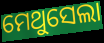
ମେଥୁସେଲା